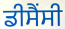
ਡੀਸੈਂਸੀ